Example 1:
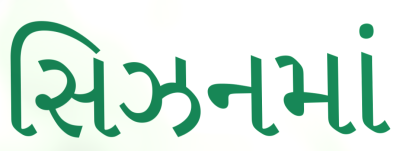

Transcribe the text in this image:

સિઝનમાં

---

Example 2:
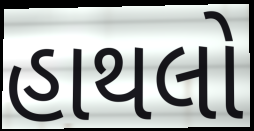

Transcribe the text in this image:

હાથલો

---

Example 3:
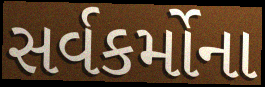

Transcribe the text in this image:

સર્વકર્મોના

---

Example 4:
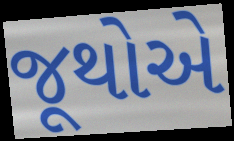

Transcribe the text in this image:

જૂથોએ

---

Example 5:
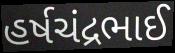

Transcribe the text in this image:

હર્ષચંદ્રભાઈ